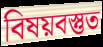
বিষয়বস্তুত